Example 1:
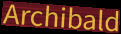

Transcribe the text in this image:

Archibald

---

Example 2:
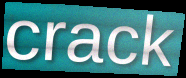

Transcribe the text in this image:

crack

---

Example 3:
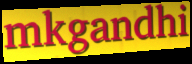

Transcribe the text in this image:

mkgandhi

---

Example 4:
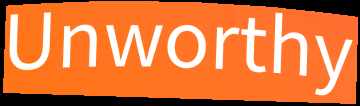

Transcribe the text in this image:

Unworthy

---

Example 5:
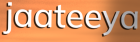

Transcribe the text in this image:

jaateeya